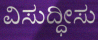
ವಿಸುದ್ಧೀಸು